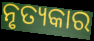
ନୃତ୍ୟକାର